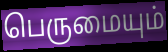
பெருமையும்